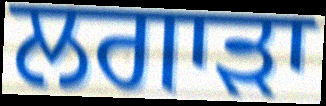
ਲਗਾੜਾ